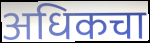
अधिकचा